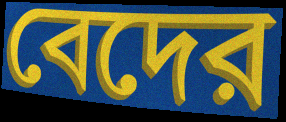
বেদের